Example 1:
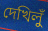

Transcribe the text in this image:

দেখিলুঁ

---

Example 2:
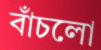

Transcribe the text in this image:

বাঁচলো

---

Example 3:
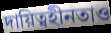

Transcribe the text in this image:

দায়িত্বহীনতাও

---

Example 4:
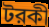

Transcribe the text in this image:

টরকী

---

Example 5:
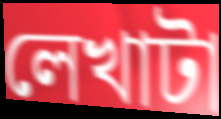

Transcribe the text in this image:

লেখাটা